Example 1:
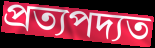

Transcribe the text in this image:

প্রত্যপদ্যত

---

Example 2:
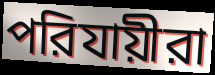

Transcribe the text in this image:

পরিযায়ীরা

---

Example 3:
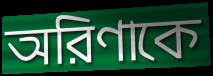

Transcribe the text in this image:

অরিণাকে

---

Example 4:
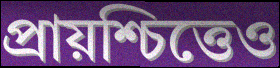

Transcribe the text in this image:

প্রায়শ্চিত্তেও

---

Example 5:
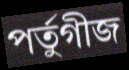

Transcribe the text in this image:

পর্তুগীজ